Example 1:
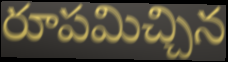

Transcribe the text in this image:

రూపమిచ్చిన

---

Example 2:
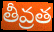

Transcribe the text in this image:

తీవ్రత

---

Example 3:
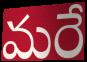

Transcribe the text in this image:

మరే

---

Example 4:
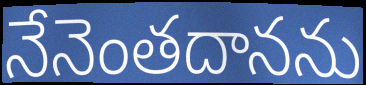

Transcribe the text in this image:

నేనెంతదానను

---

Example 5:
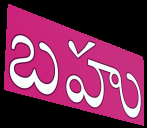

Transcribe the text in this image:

బహు